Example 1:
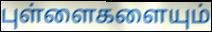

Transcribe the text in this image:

புள்ளைகளையும்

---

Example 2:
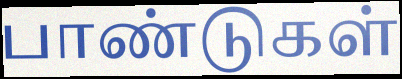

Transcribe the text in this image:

பாண்டுகள்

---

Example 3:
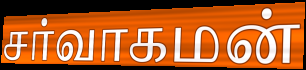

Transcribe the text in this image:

சர்வாகமன்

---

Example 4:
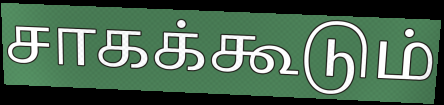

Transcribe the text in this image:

சாகக்கூடும்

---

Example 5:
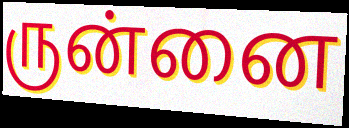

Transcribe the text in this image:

ருன்னை